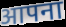
आपना